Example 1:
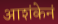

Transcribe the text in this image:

आशंकेनं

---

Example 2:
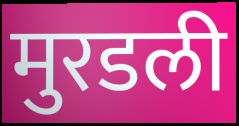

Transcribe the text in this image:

मुरडली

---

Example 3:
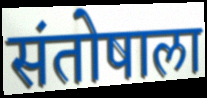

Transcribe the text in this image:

संतोषाला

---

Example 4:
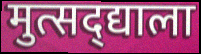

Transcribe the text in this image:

मुत्सद्द्याला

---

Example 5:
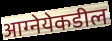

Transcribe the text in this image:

आग्नेयेकडील